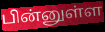
பின்னுள்ள